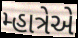
મ્હાત્રેએ